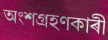
অংশগ্ৰহণকাৰী